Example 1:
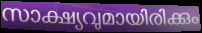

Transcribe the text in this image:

സാക്ഷ്യവുമായിരിക്കും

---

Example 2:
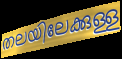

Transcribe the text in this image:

തലയിലേക്കുള്ള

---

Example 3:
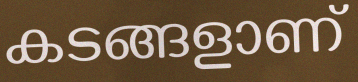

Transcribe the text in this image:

കടങ്ങളാണ്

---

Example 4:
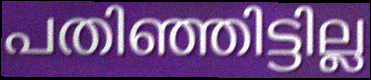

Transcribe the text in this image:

പതിഞ്ഞിട്ടില്ല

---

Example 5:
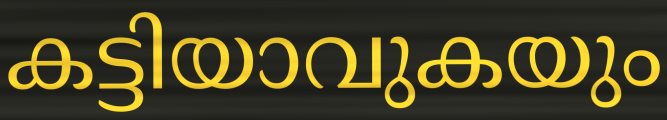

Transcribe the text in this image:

കട്ടിയാവുകയും